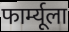
फार्म्यूला